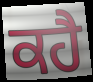
ਕਹੈ